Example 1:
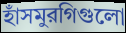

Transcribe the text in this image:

হাঁসমুরগিগুলো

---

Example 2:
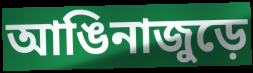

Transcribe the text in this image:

আঙিনাজুড়ে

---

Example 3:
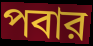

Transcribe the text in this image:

পবার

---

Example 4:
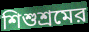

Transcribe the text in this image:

শিশুশ্রমের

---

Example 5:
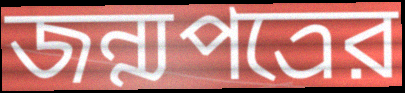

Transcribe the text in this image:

জন্মপত্রের